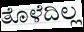
ತೊಳೆದಿಲ್ಲ